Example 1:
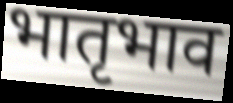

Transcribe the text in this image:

भातृभाव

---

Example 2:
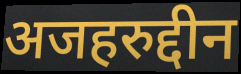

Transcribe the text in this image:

अजहरुद्दीन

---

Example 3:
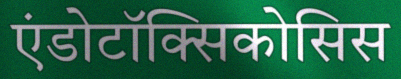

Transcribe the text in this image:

एंडोटॉक्सिकोसिस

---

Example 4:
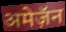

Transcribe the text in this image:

अमेज़ॅन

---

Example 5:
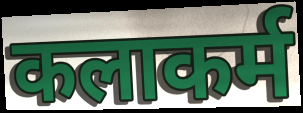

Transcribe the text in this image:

कलाकर्म